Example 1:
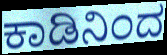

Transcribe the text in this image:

ಕಾಡಿನಿಂದ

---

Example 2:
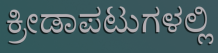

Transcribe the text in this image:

ಕ್ರೀಡಾಪಟುಗಳಲ್ಲಿ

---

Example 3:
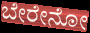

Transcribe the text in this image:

ಬೇರೇನೋ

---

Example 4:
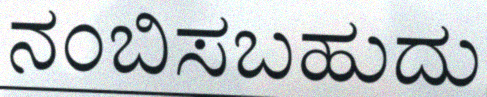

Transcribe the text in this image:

ನಂಬಿಸಬಹುದು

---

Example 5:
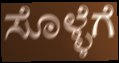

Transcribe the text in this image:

ಸೊಳ್ಳೆಗೆ